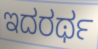
ಇದರರ್ಥ